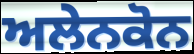
ਅਲੇਨਕੋਨ